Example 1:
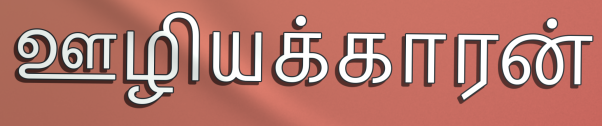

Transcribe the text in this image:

ஊழியக்காரன்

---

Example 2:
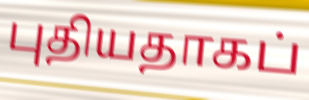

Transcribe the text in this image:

புதியதாகப்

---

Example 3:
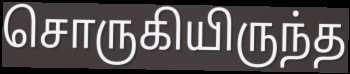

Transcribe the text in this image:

சொருகியிருந்த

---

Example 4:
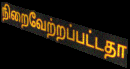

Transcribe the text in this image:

நிறைவேற்றப்பட்டதா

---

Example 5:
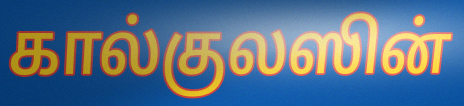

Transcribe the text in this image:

கால்குலஸின்